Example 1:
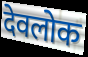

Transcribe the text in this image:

देवलोक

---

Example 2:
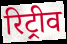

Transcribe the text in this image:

रिट्रीव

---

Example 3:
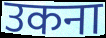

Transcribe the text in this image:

उकना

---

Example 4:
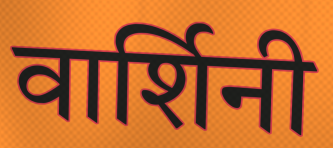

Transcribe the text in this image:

वार्शिनी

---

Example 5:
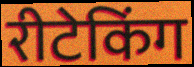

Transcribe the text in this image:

रीटेकिंग